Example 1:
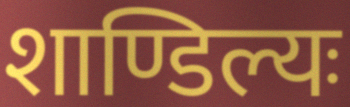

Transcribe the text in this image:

शाण्डिल्यः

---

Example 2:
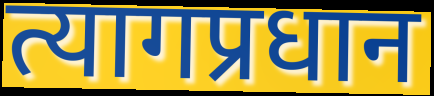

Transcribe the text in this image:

त्यागप्रधान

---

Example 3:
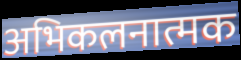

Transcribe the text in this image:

अभिकलनात्मक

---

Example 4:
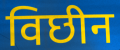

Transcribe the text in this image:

विछीन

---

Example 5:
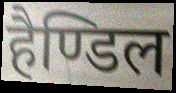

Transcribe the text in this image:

हैण्डिल